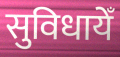
सुविधायेँ